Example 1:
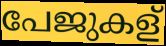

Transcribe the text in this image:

പേജുകള്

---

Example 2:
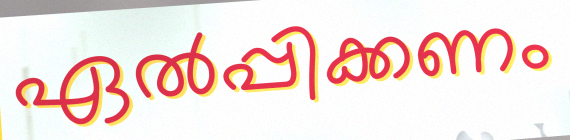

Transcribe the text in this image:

ഏൽപ്പിക്കണം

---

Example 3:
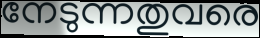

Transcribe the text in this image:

നേടുന്നതുവരെ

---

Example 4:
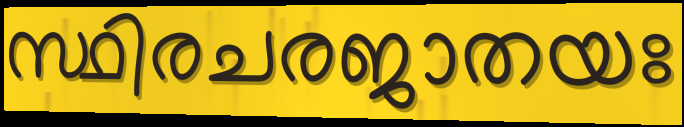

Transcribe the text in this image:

സ്ഥിരചരജാതയഃ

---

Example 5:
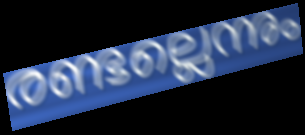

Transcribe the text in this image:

രണ്ടല്ലെന്നും